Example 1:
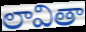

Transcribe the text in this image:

లావితా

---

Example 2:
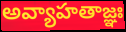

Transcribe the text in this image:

అవ్యాహతాజ్ఞః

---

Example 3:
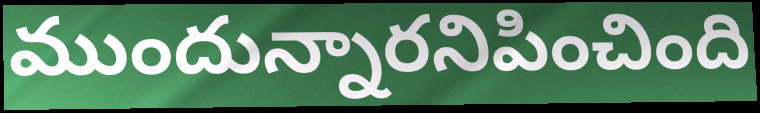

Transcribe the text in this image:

ముందున్నారనిపించింది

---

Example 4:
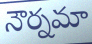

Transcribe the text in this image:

నౌర్నమా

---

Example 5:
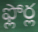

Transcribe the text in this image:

ఫ్లోర్ల